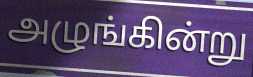
அழுங்கின்று